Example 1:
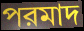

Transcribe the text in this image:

পরমাদ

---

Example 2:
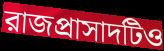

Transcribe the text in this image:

রাজপ্রাসাদটিও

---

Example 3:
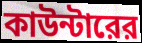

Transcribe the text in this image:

কাউন্টারের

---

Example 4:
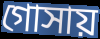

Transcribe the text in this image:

গোসায়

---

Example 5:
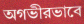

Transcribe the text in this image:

অগভীরভাবে